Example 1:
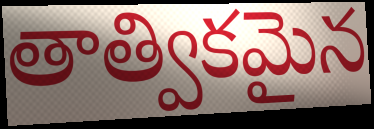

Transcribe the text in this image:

తాత్వికమైన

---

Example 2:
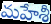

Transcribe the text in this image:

మహేశీ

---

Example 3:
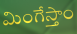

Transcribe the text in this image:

మింగేస్తాం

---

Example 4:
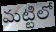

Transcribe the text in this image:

మట్టిలో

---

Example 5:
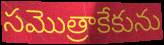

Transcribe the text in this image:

సమొత్రాకేకును